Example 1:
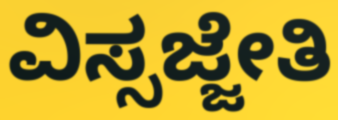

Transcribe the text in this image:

ವಿಸ್ಸಜ್ಜೇತಿ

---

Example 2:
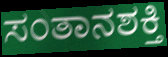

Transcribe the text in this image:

ಸಂತಾನಶಕ್ತಿ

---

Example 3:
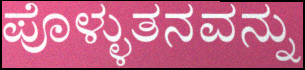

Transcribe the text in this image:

ಪೊಳ್ಳುತನವನ್ನು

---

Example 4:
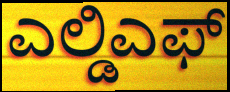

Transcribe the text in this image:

ಎಲ್ಡಿಎಫ್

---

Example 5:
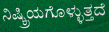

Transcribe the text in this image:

ನಿಷ್ಕ್ರಿಯಗೊಳ್ಳುತ್ತದೆ